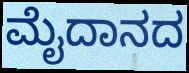
ಮೈದಾನದ